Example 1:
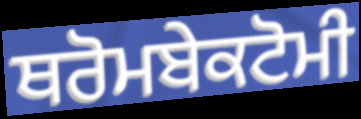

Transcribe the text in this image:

ਥਰੋਮਬੇਕਟੋਮੀ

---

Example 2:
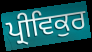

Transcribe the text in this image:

ਪ੍ਰੀਵਿਕੁਰ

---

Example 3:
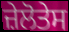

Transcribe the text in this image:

ਜ਼ੇਲੋਤੇਸ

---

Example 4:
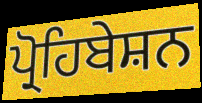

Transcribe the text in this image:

ਪ੍ਰੋਹਿਬੇਸ਼ਨ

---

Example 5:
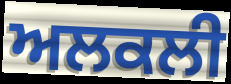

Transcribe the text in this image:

ਅਲਕਲੀ